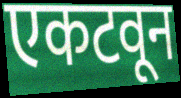
एकटवून